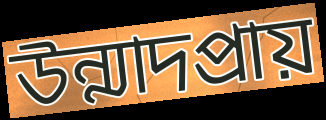
উন্মাদপ্রায়